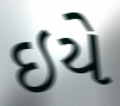
ઇયે